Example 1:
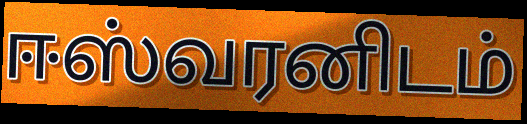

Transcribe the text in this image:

ஈஸ்வரனிடம்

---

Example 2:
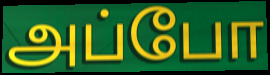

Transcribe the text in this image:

அப்போ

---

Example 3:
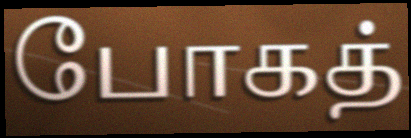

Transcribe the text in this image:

போகத்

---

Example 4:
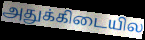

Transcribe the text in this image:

அதுக்கிடையில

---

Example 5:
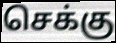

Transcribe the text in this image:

செக்கு